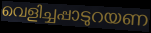
വെളിച്ചപ്പാടുറയണ